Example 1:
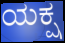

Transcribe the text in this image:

ಯಕ್ಷ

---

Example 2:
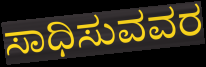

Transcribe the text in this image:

ಸಾಧಿಸುವವರ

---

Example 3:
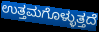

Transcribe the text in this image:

ಉತ್ತಮಗೊಳ್ಳುತ್ತದೆ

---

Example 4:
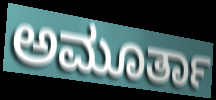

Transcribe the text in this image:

ಅಮೂರ್ತಾ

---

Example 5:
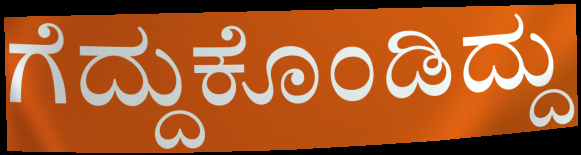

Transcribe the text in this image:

ಗೆದ್ದುಕೊಂಡಿದ್ದು